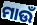
ମାଉଁ